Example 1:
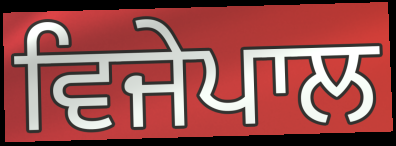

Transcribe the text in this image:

ਵਿਜੇਪਾਲ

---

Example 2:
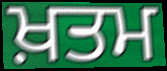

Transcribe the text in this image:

ਖ਼ਤਮ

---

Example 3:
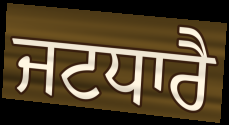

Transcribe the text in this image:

ਜਟਧਾਰੈ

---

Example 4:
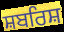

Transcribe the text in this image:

ਸ਼ਬਰਿਸ਼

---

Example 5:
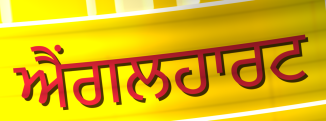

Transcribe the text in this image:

ਐਂਗਲਹਾਰਟ